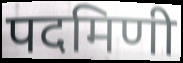
पदमिणी